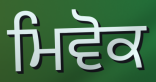
ਮਿਵੋਕ